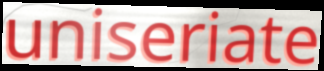
uniseriate